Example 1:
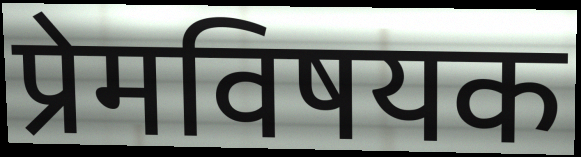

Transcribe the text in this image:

प्रेमविषयक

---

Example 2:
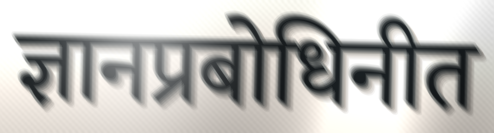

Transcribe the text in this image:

ज्ञानप्रबोधिनीत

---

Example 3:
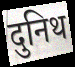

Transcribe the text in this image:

दुनिथ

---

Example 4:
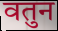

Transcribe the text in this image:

वतुन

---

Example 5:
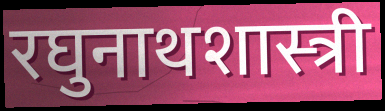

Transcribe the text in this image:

रघुनाथशास्त्री